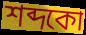
শব্দকো